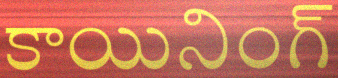
కాయినింగ్